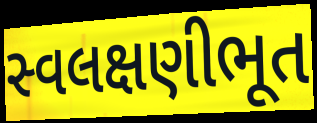
સ્વલક્ષણીભૂત